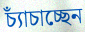
চ্যাঁচাচ্ছেন